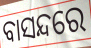
ବାସନ୍ଦରେ